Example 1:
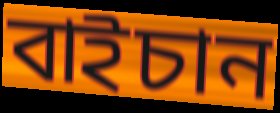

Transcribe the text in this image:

বাইচান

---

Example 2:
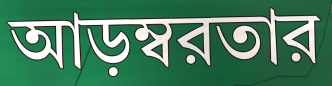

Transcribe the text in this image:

আড়ম্বরতার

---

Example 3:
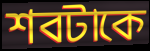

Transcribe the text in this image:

শবটাকে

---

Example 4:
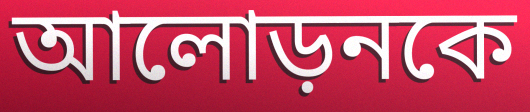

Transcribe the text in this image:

আলোড়নকে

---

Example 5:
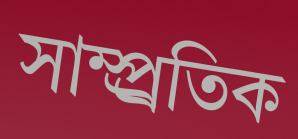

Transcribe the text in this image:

সাম্প্র্রতিক